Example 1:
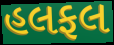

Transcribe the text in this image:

હલફલ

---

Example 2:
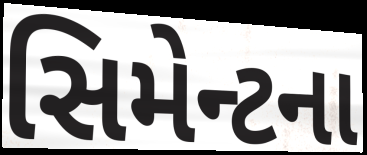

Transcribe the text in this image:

સિમેન્ટના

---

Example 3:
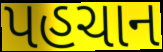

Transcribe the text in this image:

પહચાન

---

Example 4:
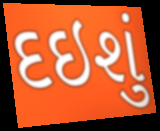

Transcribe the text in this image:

દઇશું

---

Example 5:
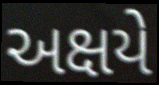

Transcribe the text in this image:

અક્ષયે